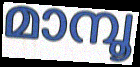
മാമ്പൂ